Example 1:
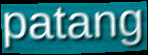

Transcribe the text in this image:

patang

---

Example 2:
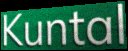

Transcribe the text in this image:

Kuntal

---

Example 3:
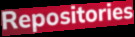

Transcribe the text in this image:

Repositories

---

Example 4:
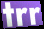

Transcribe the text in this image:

trr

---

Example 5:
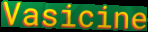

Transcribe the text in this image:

Vasicine